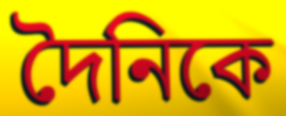
দৈনিকে